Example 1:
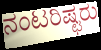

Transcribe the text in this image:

ನಂಟರಿಷ್ಟರು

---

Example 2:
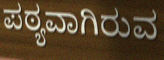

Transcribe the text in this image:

ಪಠ್ಯವಾಗಿರುವ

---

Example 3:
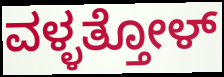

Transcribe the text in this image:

ವಳ್ಳತ್ತೋಳ್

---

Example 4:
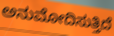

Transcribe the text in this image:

ಅನುಮೋದಿಸುತ್ತಿದೆ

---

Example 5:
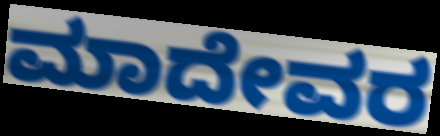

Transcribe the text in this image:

ಮಾದೇವರ